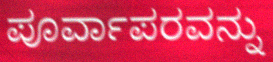
ಪೂರ್ವಾಪರವನ್ನು